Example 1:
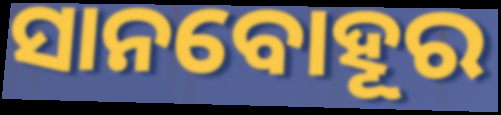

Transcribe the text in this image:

ସାନବୋହୂର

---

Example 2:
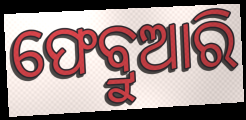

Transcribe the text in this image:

ଫେବ୍ରୁଆରି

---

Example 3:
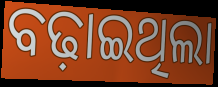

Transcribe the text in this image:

ବଢ଼ାଇଥିଲା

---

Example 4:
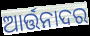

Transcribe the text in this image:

ଆର୍ତ୍ତନାଦର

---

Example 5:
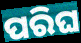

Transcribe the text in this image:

ପରିଘ